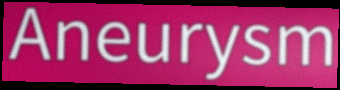
Aneurysm